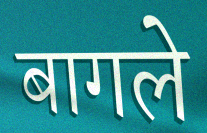
बागले